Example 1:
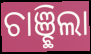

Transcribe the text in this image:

ଚାଞ୍ଛିଲା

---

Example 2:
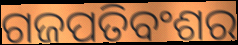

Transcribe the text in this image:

ଗଜପତିବଂଶର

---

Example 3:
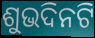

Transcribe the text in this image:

ଶୁଭଦିନଟି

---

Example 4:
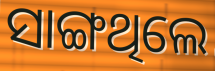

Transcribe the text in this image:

ସାଙ୍ଗଥିଲେ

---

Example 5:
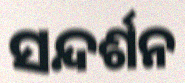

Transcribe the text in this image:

ସନ୍ଦର୍ଶନ